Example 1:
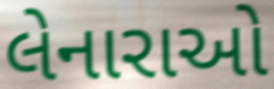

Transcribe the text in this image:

લેનારાઓ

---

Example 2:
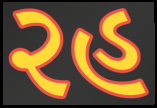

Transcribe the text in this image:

રહ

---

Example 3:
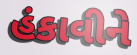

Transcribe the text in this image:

હંકાવીને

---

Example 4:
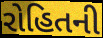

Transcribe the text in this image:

રોહિતની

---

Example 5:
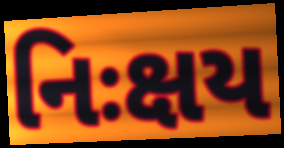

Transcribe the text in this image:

નિઃક્ષય